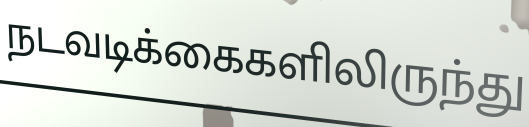
நடவடிக்கைகளிலிருந்து